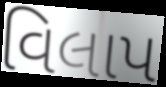
વિલાપ